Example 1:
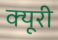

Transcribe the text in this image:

क्यूरी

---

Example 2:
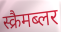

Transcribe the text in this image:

स्क्रैमब्लर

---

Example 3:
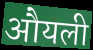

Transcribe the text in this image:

औयली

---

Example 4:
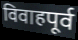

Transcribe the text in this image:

विवाहपूर्व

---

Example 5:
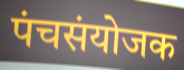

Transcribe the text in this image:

पंचसंयोजक